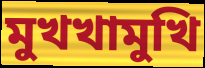
মুখখামুখি